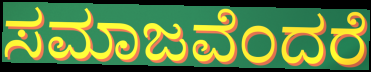
ಸಮಾಜವೆಂದರೆ